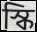
স্কি